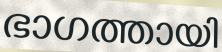
ഭാഗത്തായി